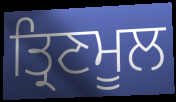
ਤ੍ਰਿਣਮੂਲ